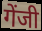
गेंजी